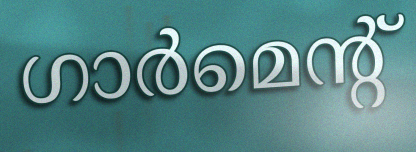
ഗാർമെന്റ്